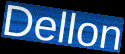
Dellon